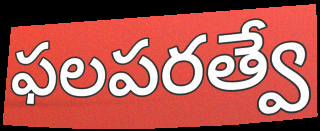
ఫలపరత్వే